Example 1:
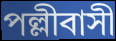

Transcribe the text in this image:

পল্লীবাসী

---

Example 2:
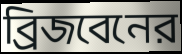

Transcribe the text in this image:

ব্রিজবেনের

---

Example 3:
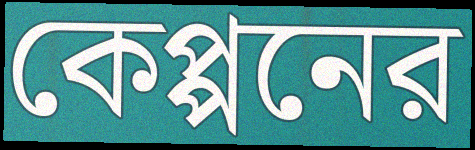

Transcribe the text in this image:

কেপ্পনের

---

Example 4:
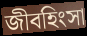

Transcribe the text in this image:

জীবহিংসা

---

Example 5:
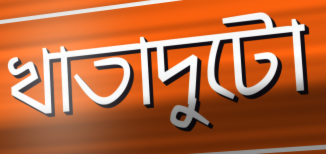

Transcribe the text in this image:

খাতাদুটো